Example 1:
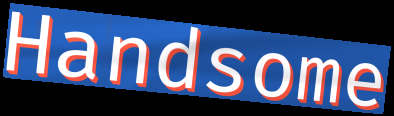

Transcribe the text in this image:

Handsome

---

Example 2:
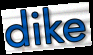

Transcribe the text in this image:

dike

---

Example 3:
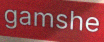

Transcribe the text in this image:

gamshe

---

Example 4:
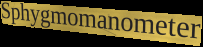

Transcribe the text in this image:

Sphygmomanometer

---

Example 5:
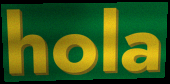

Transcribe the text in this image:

hola